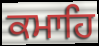
ਕਮਾਹਿ